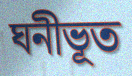
ঘনীভূত